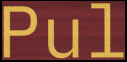
Pul